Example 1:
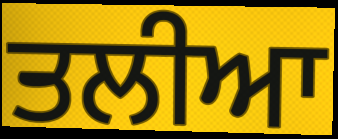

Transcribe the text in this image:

ਤਲੀਆ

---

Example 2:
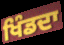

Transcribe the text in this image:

ਖਿੰਡਦਾ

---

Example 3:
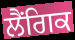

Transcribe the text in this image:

ਲੈਂਗਿਕ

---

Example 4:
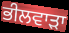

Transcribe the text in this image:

ਭੀਲਵਾੜਾ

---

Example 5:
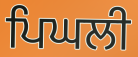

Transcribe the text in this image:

ਪਿਘਲੀ